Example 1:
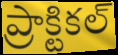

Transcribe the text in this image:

ప్రాక్టికల్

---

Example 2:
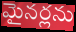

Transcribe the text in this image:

మైనర్లను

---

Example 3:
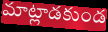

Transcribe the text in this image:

మాట్లాడకుండ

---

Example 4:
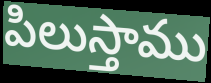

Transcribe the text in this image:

పిలుస్తాము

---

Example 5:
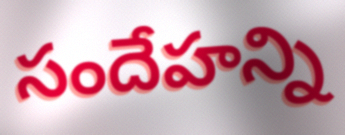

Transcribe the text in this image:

సందేహన్ని